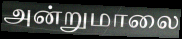
அன்றுமாலை